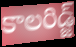
కాలరిడ్జ్